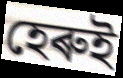
হেৰুই